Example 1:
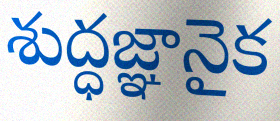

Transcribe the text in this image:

శుద్ధజ్ఞానైక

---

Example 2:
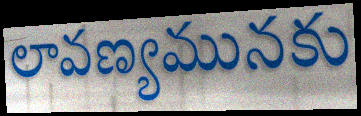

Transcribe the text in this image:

లావణ్యమునకు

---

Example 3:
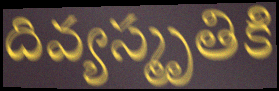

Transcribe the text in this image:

దివ్యస్మృతికి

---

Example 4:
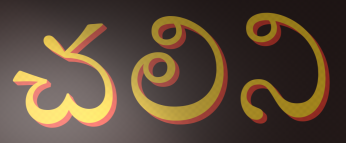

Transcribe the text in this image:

చలిని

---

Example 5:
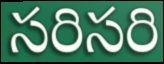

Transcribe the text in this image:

సరిసరి